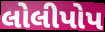
લોલીપોપ